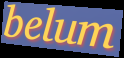
belum